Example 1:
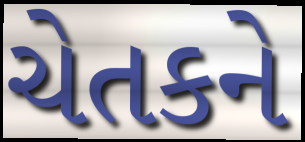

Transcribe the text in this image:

ચેતકને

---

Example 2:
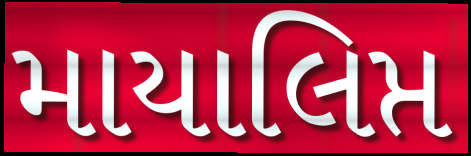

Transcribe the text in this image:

માયાલિપ્ત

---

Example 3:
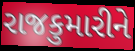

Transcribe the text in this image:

રાજકુમારીને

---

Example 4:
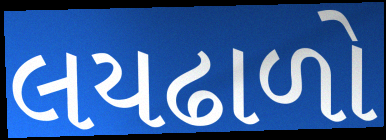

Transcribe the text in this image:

લયઢાળો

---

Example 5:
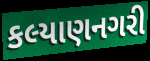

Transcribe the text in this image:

કલ્યાણનગરી